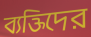
ব্যক্তিদের